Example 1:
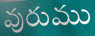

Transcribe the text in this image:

వురుము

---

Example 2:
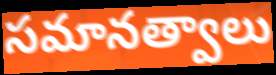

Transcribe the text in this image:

సమానత్వాలు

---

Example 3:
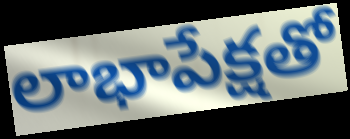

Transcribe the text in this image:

లాభాపేక్షతో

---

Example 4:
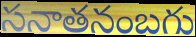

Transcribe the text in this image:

సనాతనంబగు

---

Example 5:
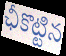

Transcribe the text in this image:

ఛీకొట్టిన